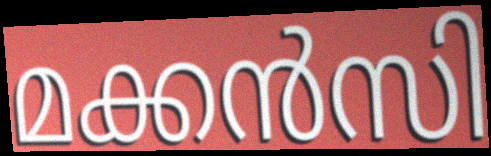
മക്കൻസി